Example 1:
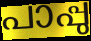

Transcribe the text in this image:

പാപ്പു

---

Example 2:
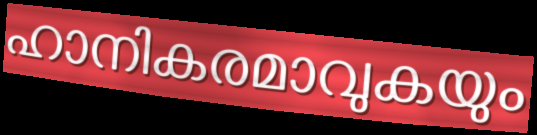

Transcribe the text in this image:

ഹാനികരമാവുകയും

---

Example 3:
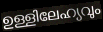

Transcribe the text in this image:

ഉള്ളിലേഹ്യവും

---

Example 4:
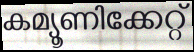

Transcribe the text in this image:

കമ്യൂണിക്കേറ്റ്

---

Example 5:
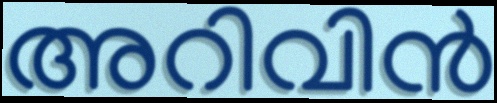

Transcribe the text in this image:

അറിവിൻ